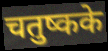
चतुष्कके